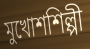
মুখোশশিল্পী